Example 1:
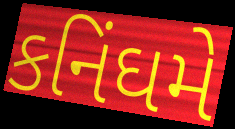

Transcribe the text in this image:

કનિંઘમે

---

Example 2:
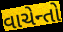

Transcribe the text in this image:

વાચેન્તો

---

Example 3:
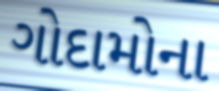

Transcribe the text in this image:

ગોદામોના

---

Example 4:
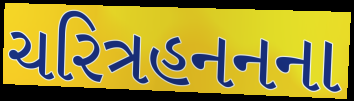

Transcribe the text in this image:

ચરિત્રહનનના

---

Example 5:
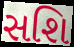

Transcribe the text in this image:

સશિ